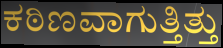
ಕಠಿಣವಾಗುತ್ತಿತ್ತು